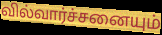
வில்வார்ச்சனையும்